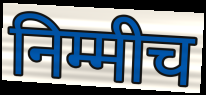
निम्मीच